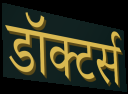
डॉक्टर्स